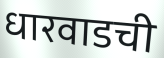
धारवाडची